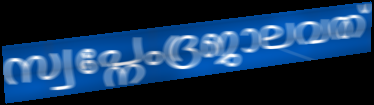
സ്വപ്നേംദ്രജാലവത്